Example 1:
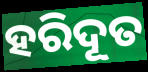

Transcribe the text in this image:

ହରିଦୂତ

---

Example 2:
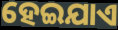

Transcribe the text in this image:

ହେଇଯାଏ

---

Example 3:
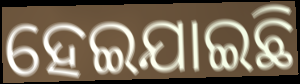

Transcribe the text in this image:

ହେଇଯାଇଛି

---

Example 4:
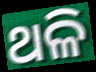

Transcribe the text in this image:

ଥଳି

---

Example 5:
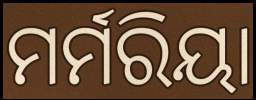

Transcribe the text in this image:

ମର୍ମରିୟା